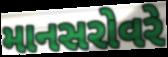
માનસરોવરે